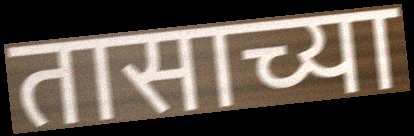
तासाच्या